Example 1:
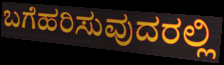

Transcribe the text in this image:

ಬಗೆಹರಿಸುವುದರಲ್ಲಿ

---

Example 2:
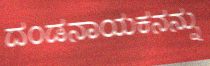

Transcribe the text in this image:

ದಂಡನಾಯಕನನ್ನು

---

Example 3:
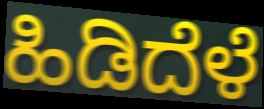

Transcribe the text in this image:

ಹಿಡಿದೆಳೆ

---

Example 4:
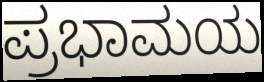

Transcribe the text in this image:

ಪ್ರಭಾಮಯ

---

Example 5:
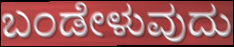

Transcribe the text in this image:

ಬಂಡೇಳುವುದು